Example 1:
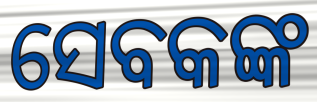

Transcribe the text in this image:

ସେବକଙ୍କ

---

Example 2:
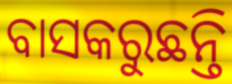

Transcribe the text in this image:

ବାସକରୁଛନ୍ତି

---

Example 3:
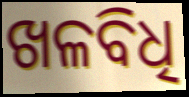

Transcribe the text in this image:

ଖଳବିଧି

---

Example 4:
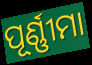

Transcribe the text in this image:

ପୂର୍ଣ୍ଣୀମା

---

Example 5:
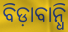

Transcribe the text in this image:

ବିଡ଼ାବାନ୍ଧି